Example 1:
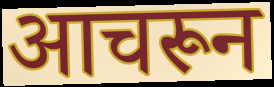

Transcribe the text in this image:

आचरून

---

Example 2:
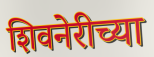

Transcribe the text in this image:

शिवनेरीच्या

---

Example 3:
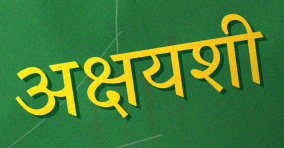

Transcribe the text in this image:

अक्षयशी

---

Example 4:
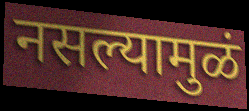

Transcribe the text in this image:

नसल्यामुळं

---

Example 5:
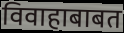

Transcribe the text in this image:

विवाहाबाबत